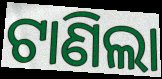
ଟାଣିଲା